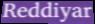
Reddiyar